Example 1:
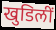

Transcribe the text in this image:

खुडिलीं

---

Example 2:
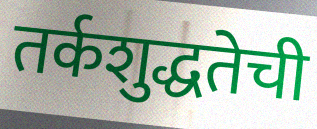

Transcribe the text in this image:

तर्कशुद्धतेची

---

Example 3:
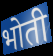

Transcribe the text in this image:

भोती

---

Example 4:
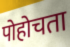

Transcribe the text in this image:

पोहोचता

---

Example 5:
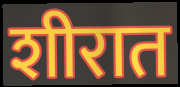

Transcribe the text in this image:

शीरात